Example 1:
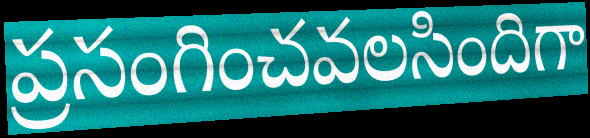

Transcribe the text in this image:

ప్రసంగించవలసిందిగా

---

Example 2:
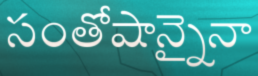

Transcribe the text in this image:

సంతోషాన్నైనా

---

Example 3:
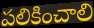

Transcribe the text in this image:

పలికించాలి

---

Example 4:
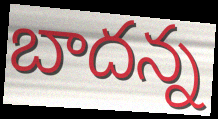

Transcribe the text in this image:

బాదన్న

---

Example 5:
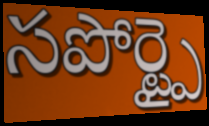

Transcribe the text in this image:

సపోర్ట్పై